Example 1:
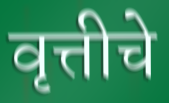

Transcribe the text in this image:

वृत्तीचे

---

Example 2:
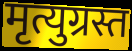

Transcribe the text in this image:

मृत्युग्रस्त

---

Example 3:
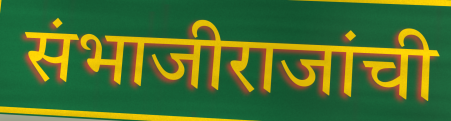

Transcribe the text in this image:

संभाजीराजांची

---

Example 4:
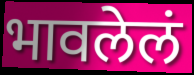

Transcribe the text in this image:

भावलेलं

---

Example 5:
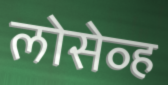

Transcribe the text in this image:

लोसेव्ह